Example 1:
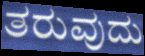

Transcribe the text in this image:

ತರುವುದು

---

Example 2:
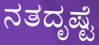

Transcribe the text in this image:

ನತದೃಷ್ಟೆ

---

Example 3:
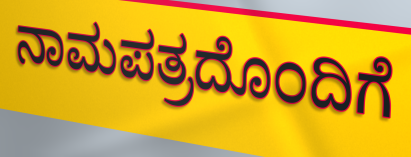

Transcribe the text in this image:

ನಾಮಪತ್ರದೊಂದಿಗೆ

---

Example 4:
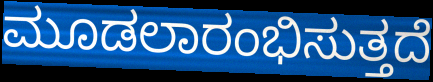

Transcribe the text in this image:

ಮೂಡಲಾರಂಭಿಸುತ್ತದೆ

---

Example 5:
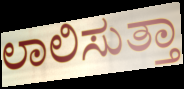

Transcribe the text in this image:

ಲಾಲಿಸುತ್ತಾ